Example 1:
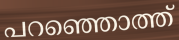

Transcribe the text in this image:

പറഞ്ഞൊത്ത്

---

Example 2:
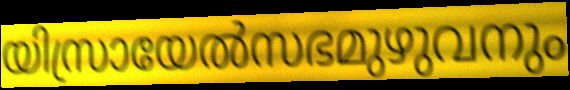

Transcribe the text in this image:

യിസ്രായേൽസഭമുഴുവനും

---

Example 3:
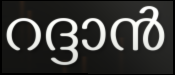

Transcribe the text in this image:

റദ്ദാൻ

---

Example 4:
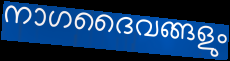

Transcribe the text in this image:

നാഗദൈവങ്ങളും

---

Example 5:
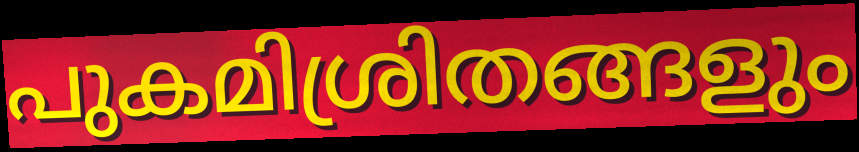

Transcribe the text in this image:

പുകമിശ്രിതങ്ങളും